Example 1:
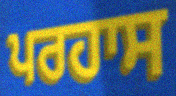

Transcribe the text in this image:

ਪਰਹਾਸ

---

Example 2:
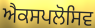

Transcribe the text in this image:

ਐਕਸਪਲੋਸਿਵ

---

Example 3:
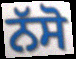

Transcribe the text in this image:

ਨੱਸੋ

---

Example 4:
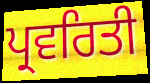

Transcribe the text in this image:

ਪ੍ਰਵਰਿਤੀ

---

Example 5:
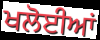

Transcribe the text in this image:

ਖਲੋਈਆਂ